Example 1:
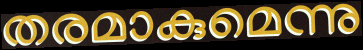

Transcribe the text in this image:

തരമാകുമെന്നു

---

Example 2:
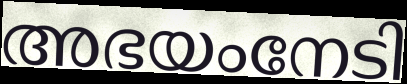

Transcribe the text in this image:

അഭയംനേടി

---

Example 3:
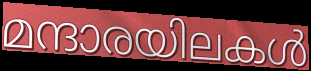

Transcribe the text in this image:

മന്ദാരയിലകൾ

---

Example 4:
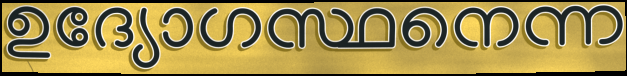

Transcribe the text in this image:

ഉദ്യോഗസ്ഥനെന്ന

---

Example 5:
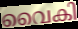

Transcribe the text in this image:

വൈകി